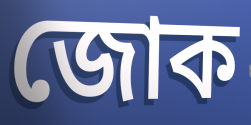
জোক